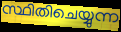
സ്ഥിതിചെയ്യുന്ന